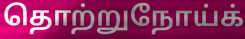
தொற்றுநோய்க்